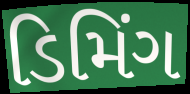
ડિમિંગ